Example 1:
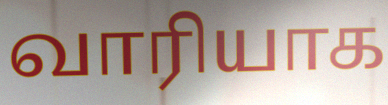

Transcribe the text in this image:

வாரியாக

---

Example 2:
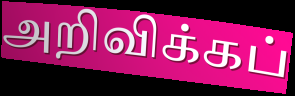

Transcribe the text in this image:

அறிவிக்கப்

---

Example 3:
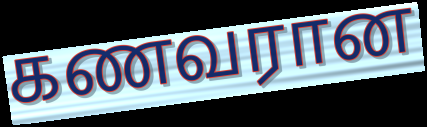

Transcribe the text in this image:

கணவரான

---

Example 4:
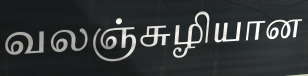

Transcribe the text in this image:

வலஞ்சுழியான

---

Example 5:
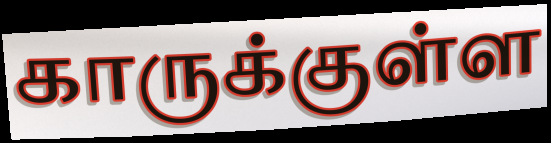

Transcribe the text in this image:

காருக்குள்ள